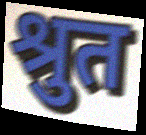
श्रुत